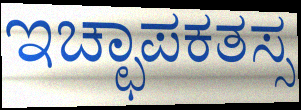
ಇಚ್ಛಾಪಕತಸ್ಸ